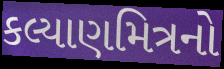
કલ્યાણમિત્રનો